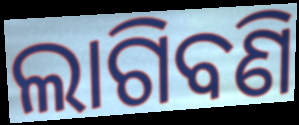
ଲାଗିବଣି